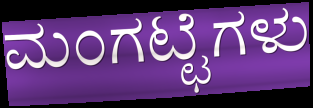
ಮಂಗಟ್ಟೆಗಳು